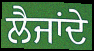
ਲੈਜਾਂਦੇ